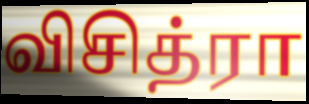
விசித்ரா